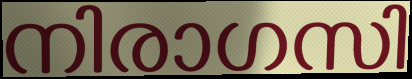
നിരാഗസി